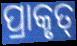
ପ୍ରାକୃତ୍